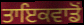
ਤਾਇਕਵਾਡੋਂ